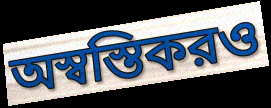
অস্বস্তিকরও